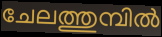
ചേലത്തുമ്പിൽ